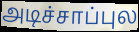
அடிச்சாப்புல